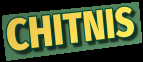
CHITNIS